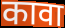
कावा